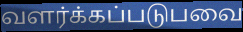
வளர்க்கப்படுபவை